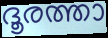
ദൂരത്താ